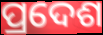
ପ୍ରଦେଶ